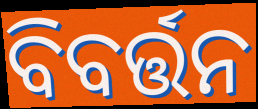
ବିବର୍ତ୍ତନ